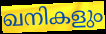
ഖനികളും